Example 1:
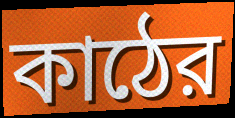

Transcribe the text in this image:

কাঠের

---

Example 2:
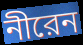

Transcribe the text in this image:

নীরেন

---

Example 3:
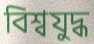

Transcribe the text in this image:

বিশ্বযুদ্ধ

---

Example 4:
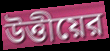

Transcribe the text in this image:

উত্তীয়ের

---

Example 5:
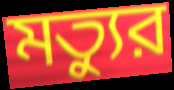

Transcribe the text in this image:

মত্যুর